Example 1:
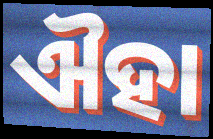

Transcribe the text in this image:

ଐହା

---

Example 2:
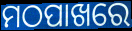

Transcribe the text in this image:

ମଠପାଖରେ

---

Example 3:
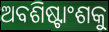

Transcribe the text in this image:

ଅବଶିଷ୍ଟାଂଶକୁ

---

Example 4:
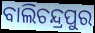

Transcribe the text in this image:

ବାଲିଚନ୍ଦ୍ରପୁର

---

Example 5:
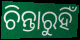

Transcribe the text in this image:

ଚିନ୍ତାରୁହିଁ